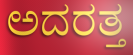
ಅದರತ್ತ